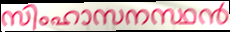
സിംഹാസനസ്ഥൻ